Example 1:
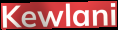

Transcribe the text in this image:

Kewlani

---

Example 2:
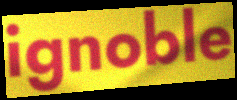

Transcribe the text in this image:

ignoble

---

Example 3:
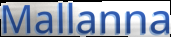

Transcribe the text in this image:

Mallanna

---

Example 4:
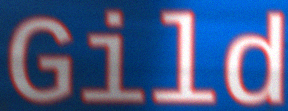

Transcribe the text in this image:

Gild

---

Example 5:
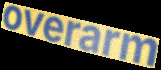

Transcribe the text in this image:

overarm